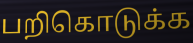
பறிகொடுக்க